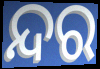
ନ୍ଦର